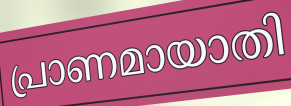
പ്രാണമായാതി